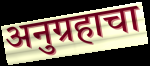
अनुग्रहाचा